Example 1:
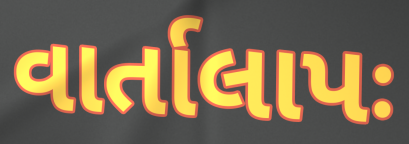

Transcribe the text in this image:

વાર્તાલાપઃ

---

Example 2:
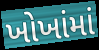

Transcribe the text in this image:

ખોખાંમાં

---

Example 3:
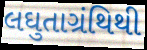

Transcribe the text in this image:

લઘુતાગ્રંથિથી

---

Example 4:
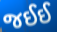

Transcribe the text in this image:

જઈઈ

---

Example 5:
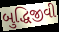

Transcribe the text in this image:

બુદ્ધિજીવી